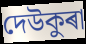
দেউকুৰা